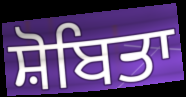
ਸ਼ੋਬਿਤਾ